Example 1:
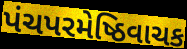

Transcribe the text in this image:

પંચપરમેષ્ઠિવાચક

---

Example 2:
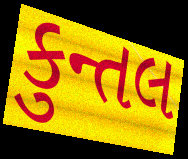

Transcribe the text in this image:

કુન્તલ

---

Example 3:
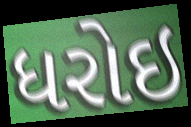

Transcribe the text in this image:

ધરોઇ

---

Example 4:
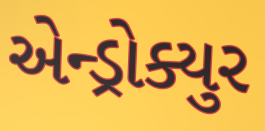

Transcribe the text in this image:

એન્ડ્રોક્યુર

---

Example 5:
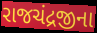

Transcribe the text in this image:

રાજચંદ્રજીના